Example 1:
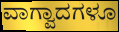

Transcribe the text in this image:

ವಾಗ್ವಾದಗಳೂ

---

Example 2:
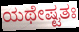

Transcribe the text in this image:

ಯಥೇಷ್ಟತಃ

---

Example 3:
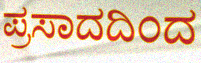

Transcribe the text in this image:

ಪ್ರಸಾದದಿಂದ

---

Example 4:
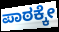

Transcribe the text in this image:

ಪಾಠಕ್ಕೇ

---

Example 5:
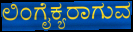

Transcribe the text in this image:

ಲಿಂಗೈಕ್ಯರಾಗುವ